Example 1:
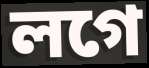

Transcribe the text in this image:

লগে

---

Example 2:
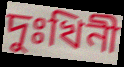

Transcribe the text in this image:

দুঃখিনী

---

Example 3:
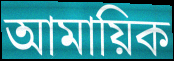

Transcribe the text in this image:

আমায়িক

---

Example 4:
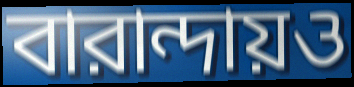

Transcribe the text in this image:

বারান্দায়ও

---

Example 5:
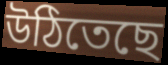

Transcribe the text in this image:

উঠিতেছে